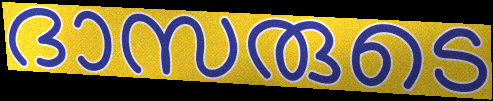
ദാസരുടെ